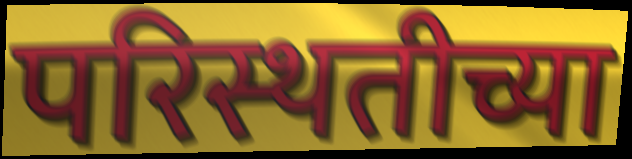
परिस्थतीच्या